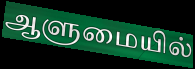
ஆளுமையில்